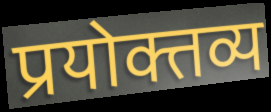
प्रयोक्तव्य